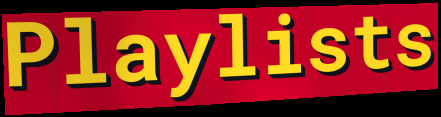
Playlists